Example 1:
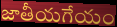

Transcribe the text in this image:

జాతీయగేయం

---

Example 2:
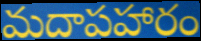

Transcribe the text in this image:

మదాపహారం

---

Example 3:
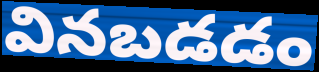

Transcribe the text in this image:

వినబడడం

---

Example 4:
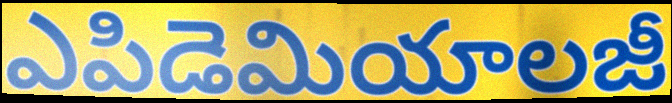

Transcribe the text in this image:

ఎపిడెమియాలజీ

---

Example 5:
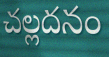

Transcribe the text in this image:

చల్లదనం